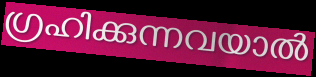
ഗ്രഹിക്കുന്നവയാൽ